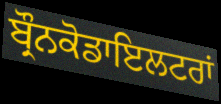
ਬ੍ਰੌਨਕੋਡਾਇਲਟਰਾਂ